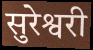
सुरेश्वरी